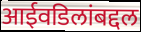
आईवडिलांबद्दल